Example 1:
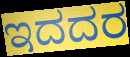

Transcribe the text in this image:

ಇದದರ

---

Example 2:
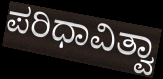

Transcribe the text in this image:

ಪರಿಧಾವಿತ್ವಾ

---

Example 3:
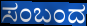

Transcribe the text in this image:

ಸಂಬಂದ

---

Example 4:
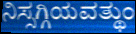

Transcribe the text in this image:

ನಿಸ್ಸಗ್ಗಿಯವತ್ಥುಂ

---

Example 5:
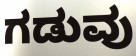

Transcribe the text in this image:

ಗಡುವು